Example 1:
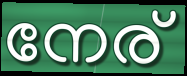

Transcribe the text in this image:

നേര്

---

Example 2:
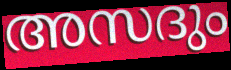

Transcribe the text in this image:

അസദും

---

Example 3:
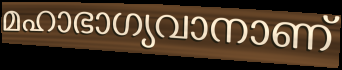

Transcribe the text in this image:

മഹാഭാഗ്യവാനാണ്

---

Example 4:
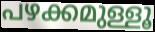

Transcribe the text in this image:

പഴക്കമുള്ളൂ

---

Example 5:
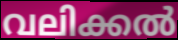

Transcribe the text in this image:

വലിക്കൽ